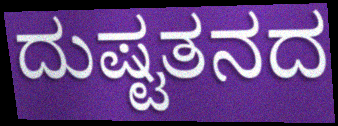
ದುಷ್ಟತನದ